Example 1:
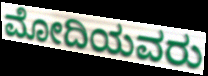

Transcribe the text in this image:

ಮೋದಿಯವರು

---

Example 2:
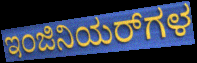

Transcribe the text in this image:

ಇಂಜಿನಿಯರ್‌ಗಳ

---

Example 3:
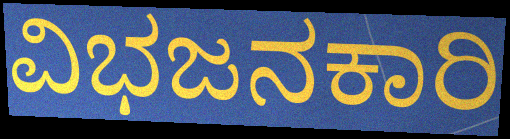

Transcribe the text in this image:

ವಿಭಜನಕಾರಿ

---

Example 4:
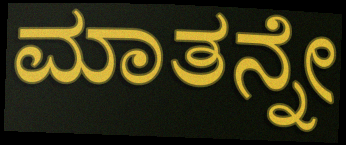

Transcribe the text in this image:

ಮಾತನ್ನೇ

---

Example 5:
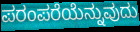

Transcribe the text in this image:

ಪರಂಪರೆಯೆನ್ನುವುದು